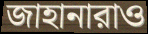
জাহানারাও